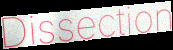
Dissection